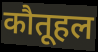
कौतूहल